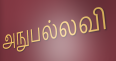
அநுபல்லவி